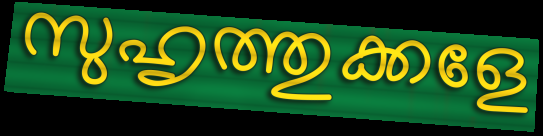
സുഹൃത്തുക്കളേ